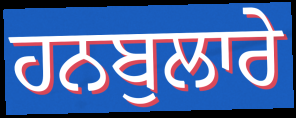
ਹਨਬੁਲਾਰੇ